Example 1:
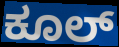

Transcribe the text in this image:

ಕೂಲ್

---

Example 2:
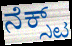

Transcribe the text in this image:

ನೆಕ್ಸ್ಟ್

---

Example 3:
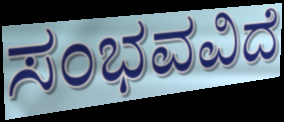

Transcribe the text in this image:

ಸಂಭವವಿದೆ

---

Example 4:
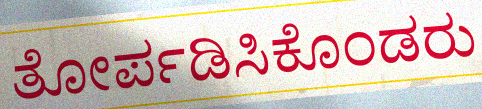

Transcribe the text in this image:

ತೋರ್ಪಡಿಸಿಕೊಂಡರು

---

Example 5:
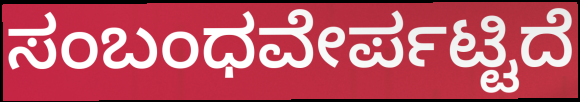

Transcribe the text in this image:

ಸಂಬಂಧವೇರ್ಪಟ್ಟಿದೆ